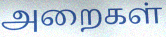
அறைகள்